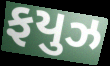
ફયુઝ